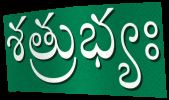
శత్రుభ్యః